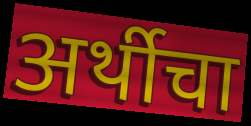
अर्थीचा